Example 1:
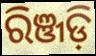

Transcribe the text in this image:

ରିଞ୍ଜଡ଼ି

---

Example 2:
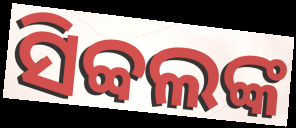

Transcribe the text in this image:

ସିବ୍ବଲଙ୍କ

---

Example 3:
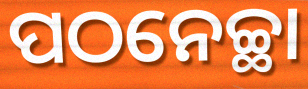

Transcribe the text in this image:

ପଠନେଚ୍ଛା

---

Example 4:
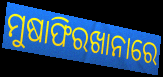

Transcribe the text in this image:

ମୁଷାଫିରଖାନାରେ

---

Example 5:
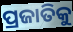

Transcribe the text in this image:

ପ୍ରଜାତିକୁ